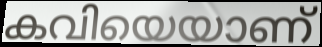
കവിയെയാണ്